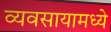
व्यवसायामध्ये